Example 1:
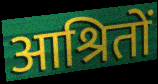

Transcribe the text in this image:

आश्रितों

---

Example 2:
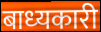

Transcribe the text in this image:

बाध्‍यकारी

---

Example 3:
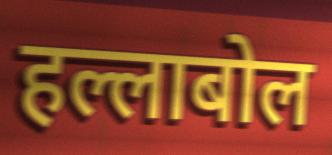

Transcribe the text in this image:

हल्लाबोल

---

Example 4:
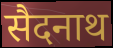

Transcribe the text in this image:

सैदनाथ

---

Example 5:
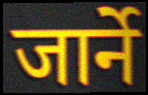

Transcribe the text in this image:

जार्ने